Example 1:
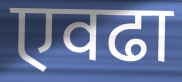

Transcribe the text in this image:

एवढा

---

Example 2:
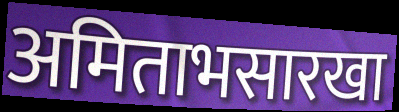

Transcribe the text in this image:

अमिताभसारखा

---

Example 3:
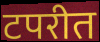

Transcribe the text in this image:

टपरीत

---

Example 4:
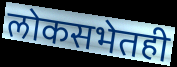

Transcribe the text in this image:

लोकसभेतही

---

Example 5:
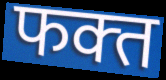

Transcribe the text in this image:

फक्‍त